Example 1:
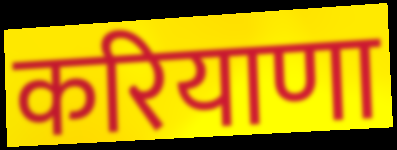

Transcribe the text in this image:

करियाणा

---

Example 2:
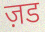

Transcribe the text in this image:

ज़ड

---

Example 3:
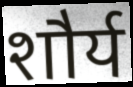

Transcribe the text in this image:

शौर्य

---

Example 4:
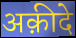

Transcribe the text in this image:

अक़ीदे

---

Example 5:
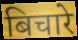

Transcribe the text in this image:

बिचारे